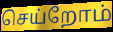
செய்றோம்